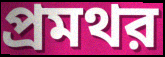
প্রমথর